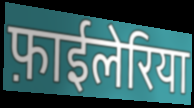
फ़ाईलेरिया